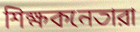
শিক্ষকনেতারা